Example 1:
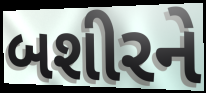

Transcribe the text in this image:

બશીરને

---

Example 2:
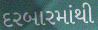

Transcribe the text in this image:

દરબારમાંથી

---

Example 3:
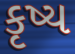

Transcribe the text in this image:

કૃષ્ય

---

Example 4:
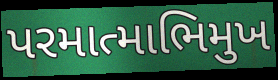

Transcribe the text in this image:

પરમાત્માભિમુખ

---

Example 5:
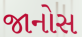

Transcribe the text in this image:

જાનોસ